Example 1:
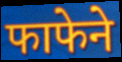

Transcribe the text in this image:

फाफेने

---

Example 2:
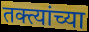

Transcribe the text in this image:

तक्त्यांच्या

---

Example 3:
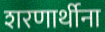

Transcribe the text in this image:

शरणार्थीना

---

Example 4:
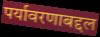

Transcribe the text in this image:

पर्यावरणाबद्दल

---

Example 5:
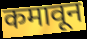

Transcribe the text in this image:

कमावून